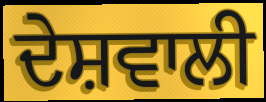
ਦੇਸ਼ਵਾਲੀ